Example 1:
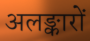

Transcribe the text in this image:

अलङ्कारों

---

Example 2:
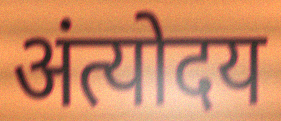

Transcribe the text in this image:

अंत्योदय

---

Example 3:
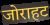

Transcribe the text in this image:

जोराहट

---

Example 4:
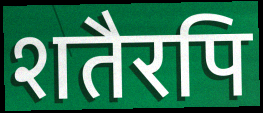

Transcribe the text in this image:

शतैरपि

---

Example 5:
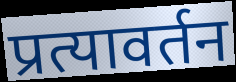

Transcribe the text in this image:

प्रत्‍यावर्तन